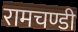
रामचण्डी